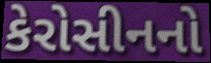
કેરોસીનનો